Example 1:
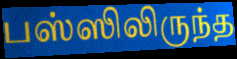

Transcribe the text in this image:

பஸ்ஸிலிருந்த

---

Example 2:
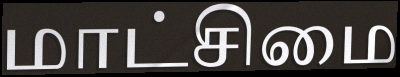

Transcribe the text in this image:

மாட்சிமை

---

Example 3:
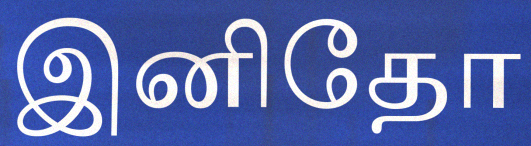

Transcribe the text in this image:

இனிதோ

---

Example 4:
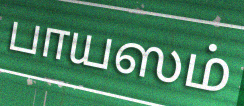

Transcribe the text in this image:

பாயஸம்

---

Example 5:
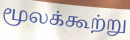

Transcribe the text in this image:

மூலக்கூற்று